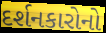
દર્શનકારોનો